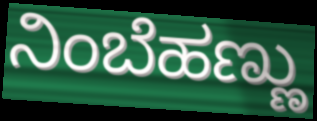
ನಿಂಬೆಹಣ್ಣು